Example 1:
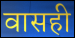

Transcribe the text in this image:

वासही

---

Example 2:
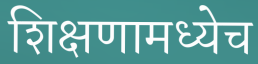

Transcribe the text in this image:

शिक्षणामध्येच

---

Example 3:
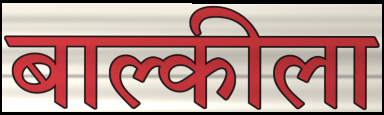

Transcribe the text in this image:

बाल्कीला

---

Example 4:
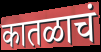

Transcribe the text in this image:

कातळाचं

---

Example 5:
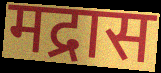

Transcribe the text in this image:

मद्रास